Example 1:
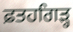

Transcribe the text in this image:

ਫ਼ਤਹਗਿੜ੍ਹ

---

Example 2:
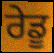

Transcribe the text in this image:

ਰੇਡੂ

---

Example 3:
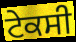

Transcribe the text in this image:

ਟੇਕਸੀ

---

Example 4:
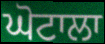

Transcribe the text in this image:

ਘੋਟਾਲਾ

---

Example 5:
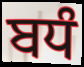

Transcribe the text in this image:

ਬਧੰ